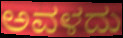
ಅವಳದು